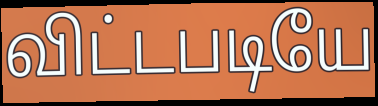
விட்டபடியே